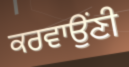
ਕਰਵਾਉਂਣੀ